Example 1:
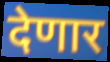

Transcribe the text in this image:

देणार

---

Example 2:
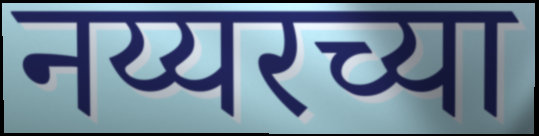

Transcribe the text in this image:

नय्यरच्या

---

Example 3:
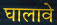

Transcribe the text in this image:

घालावे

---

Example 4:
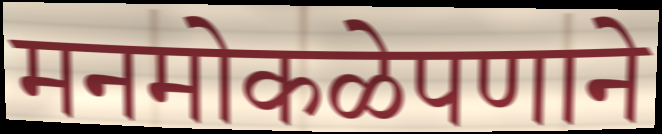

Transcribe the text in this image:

मनमोकळेपणाने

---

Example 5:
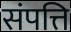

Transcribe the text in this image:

संपत्ति